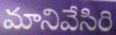
మానివేసిరి